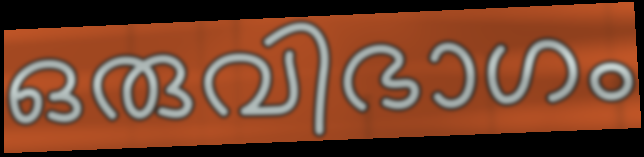
ഒരുവിഭാഗം